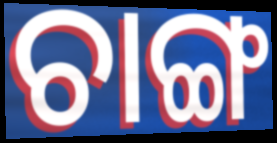
ଚାଙ୍ଗ